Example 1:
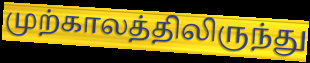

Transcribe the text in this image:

முற்காலத்திலிருந்து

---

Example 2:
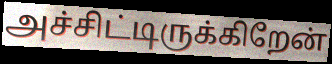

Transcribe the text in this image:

அச்சிட்டிருக்கிறேன்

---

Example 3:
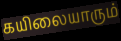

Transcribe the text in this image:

கயிலையாரும்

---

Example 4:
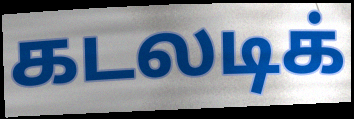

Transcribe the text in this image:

கடலடிக்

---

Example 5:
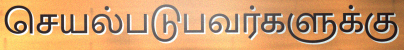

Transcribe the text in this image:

செயல்படுபவர்களுக்கு